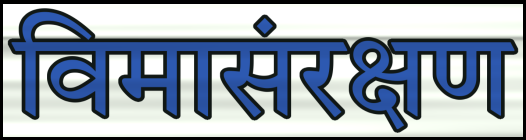
विमासंरक्षण